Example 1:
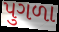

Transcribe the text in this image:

પુગળા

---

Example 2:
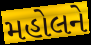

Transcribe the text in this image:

મહોલને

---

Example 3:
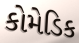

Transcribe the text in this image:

કોમેડિક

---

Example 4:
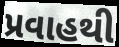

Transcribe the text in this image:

પ્રવાહથી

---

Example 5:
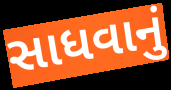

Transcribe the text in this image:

સાધવાનું